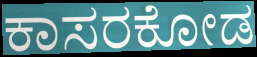
ಕಾಸರಕೋಡ